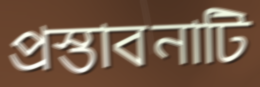
প্রস্তাবনাটি